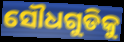
ସୌଧଗୁଡିକୁ